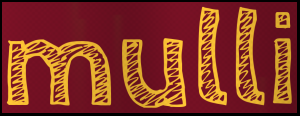
mulli